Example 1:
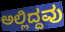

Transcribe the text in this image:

ಅಲ್ಲಿದ್ದವು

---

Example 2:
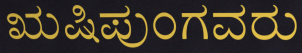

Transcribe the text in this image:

ಋಷಿಪುಂಗವರು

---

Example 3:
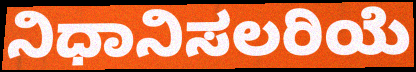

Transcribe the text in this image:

ನಿಧಾನಿಸಲರಿಯೆ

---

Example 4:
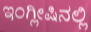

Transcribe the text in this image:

ಇಂಗ್ಲೀಷಿನಲ್ಲಿ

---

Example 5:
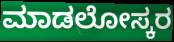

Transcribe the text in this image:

ಮಾಡಲೋಸ್ಕರ